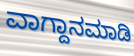
ವಾಗ್ದಾನಮಾಡಿ